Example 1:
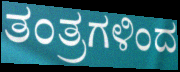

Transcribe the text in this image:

ತಂತ್ರಗಳಿಂದ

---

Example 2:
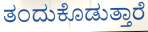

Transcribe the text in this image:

ತಂದುಕೊಡುತ್ತಾರೆ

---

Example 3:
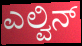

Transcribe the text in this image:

ಎಲ್ವಿನ್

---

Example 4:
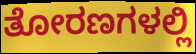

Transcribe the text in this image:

ತೋರಣಗಳಲ್ಲಿ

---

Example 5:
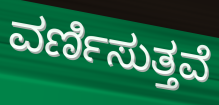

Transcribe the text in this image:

ವರ್ಣಿಸುತ್ತವೆ